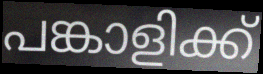
പങ്കാളിക്ക്